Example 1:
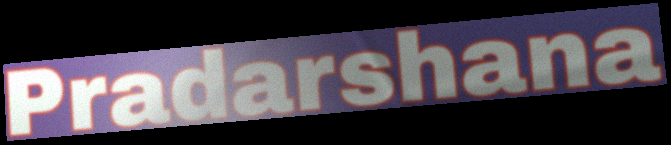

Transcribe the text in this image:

Pradarshana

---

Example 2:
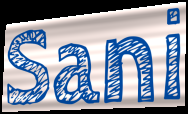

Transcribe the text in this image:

Sani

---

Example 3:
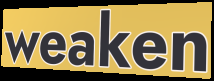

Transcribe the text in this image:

weaken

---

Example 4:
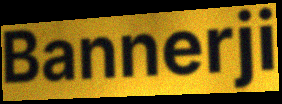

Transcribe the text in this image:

Bannerji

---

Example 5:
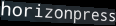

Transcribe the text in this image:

horizonpress